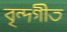
বৃন্দগীত